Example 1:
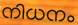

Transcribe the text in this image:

നിധനം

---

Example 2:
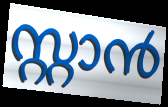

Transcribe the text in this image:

സ്റ്റാൻ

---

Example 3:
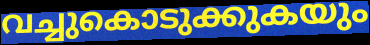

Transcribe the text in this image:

വച്ചുകൊടുക്കുകയും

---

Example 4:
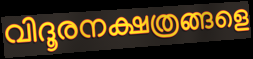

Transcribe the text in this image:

വിദൂരനക്ഷത്രങ്ങളെ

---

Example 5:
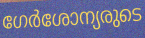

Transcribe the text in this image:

ഗേർശോന്യരുടെ